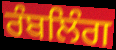
ਰੰਬਲਿੰਗ